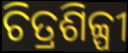
ଚିତ୍ରଶିଳ୍ପୀ